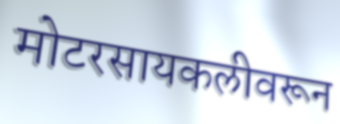
मोटरसायकलीवरून